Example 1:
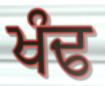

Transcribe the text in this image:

ਖੰਢ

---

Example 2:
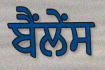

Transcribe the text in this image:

ਬੈਂਲੇਂਸ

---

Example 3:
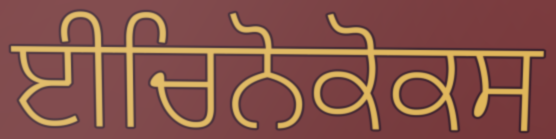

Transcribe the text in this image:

ਈਚਿਨੋਕੋਕਸ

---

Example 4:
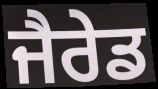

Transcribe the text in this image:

ਜੈਰੇਡ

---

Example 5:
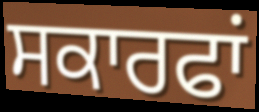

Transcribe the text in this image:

ਸਕਾਰਫਾਂ